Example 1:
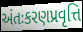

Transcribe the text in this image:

અંતઃકરણપ્રવૃત્તિ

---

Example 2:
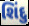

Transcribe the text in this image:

શિંદુ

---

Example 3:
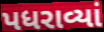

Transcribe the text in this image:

પધરાવ્યાં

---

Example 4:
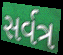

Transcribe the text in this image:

સર્વત્ર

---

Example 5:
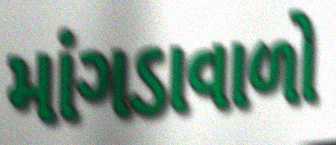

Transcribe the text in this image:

માંગડાવાળો